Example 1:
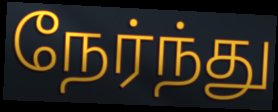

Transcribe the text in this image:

நேர்ந்து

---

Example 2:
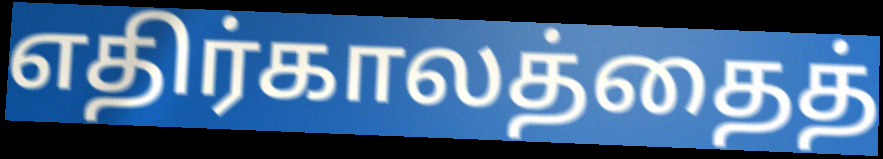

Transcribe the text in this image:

எதிர்காலத்தைத்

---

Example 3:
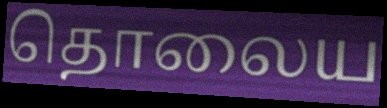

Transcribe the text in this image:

தொலைய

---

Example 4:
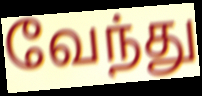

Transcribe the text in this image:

வேந்து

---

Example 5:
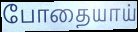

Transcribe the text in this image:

போதையாய்